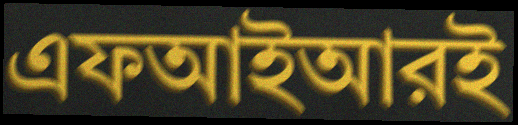
এফআইআরই